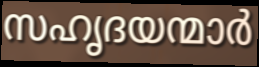
സഹൃദയന്മാർ